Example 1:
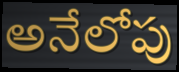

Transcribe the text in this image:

అనేలోపు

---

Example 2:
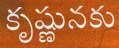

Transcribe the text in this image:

కృష్ణునకు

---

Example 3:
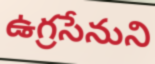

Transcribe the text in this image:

ఉగ్రసేనుని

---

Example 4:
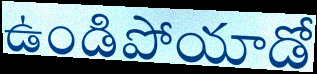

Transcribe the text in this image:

ఉండిపోయాడో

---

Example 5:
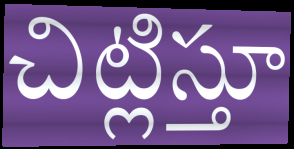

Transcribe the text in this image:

చిట్లిస్తూ